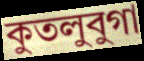
কুতলুবুগা